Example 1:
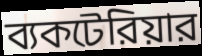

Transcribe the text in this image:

ব্যকটেরিয়ার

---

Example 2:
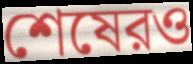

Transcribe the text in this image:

শেষেরও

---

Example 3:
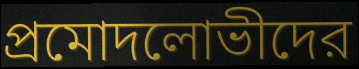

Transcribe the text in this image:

প্রমোদলোভীদের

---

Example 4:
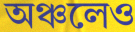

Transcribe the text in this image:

অঞ্চলেও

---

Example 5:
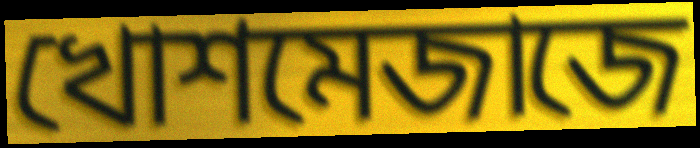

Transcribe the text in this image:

খোশমেজাজে